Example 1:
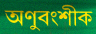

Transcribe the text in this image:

অণুবংশীক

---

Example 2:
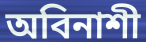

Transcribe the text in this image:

অবিনাশী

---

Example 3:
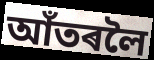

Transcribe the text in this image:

আঁতৰলৈ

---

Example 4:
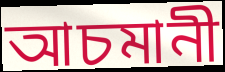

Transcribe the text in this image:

আচমানী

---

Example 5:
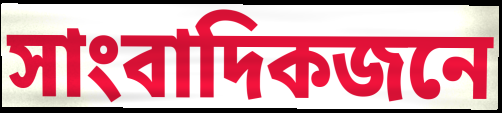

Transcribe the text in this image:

সাংবাদিকজনে